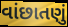
વાંછાતણું